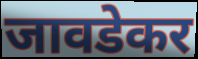
जावडेकर